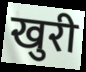
खुरी